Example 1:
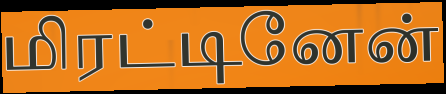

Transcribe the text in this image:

மிரட்டினேன்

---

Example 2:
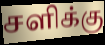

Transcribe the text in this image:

சளிக்கு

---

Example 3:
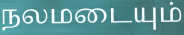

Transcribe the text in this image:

நலமடையும்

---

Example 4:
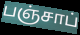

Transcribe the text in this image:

பஞ்சாப்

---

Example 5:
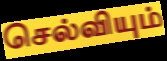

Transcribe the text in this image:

செல்வியும்